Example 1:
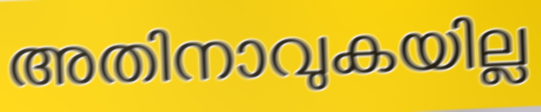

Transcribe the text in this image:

അതിനാവുകയില്ല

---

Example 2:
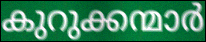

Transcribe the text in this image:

കുറുക്കന്മാർ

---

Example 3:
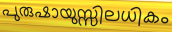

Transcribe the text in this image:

പുരുഷായുസ്സിലധികം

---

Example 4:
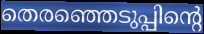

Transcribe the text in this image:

തെരഞ്ഞെടുപ്പിന്റെ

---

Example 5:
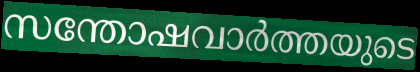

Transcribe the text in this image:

സന്തോഷവാർത്തയുടെ